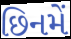
છિનમેં